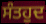
ਸੰਤਹੁਦ